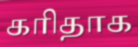
கரிதாக